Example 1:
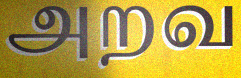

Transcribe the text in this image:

அறவ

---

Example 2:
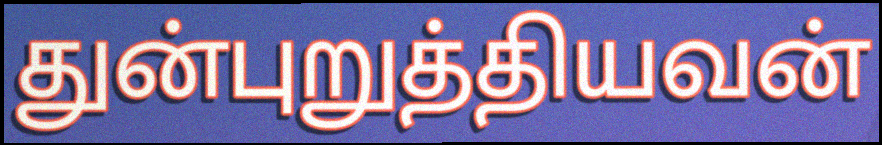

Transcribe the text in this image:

துன்புறுத்தியவன்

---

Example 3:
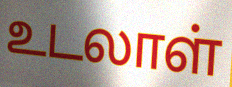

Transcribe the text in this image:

உடலாள்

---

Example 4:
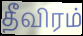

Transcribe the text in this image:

தீவிரம்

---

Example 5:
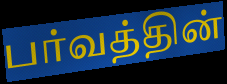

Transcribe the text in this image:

பர்வத்தின்